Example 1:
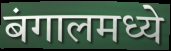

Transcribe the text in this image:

बंगालमध्ये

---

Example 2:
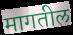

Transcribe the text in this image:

मागतील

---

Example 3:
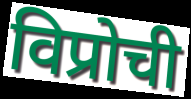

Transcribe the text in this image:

विप्रोची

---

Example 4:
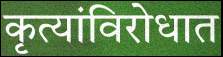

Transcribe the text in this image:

कृत्यांविरोधात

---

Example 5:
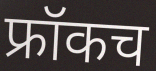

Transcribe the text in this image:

फ्रॉकच